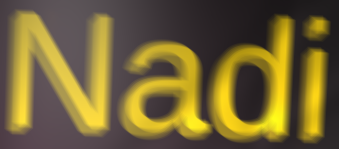
Nadi